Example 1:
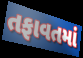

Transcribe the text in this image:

તફાવતમાં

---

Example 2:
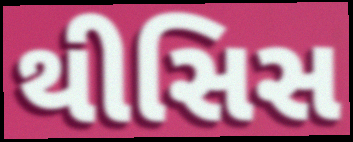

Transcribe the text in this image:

થીસિસ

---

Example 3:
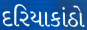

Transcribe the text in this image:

દરિયાકાંઠો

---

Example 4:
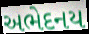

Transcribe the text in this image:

અભેદનય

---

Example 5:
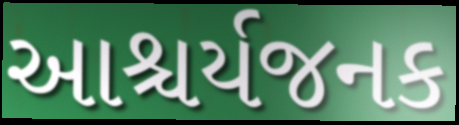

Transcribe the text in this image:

આશ્ચર્યજનક